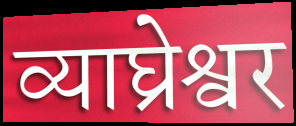
व्याघ्रेश्वर